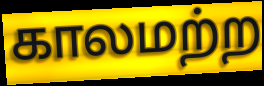
காலமற்ற